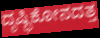
ದೃಷ್ಟಿಕೋನದತ್ತ